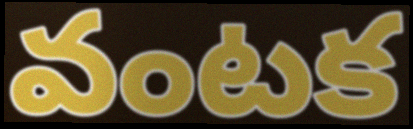
వంటక